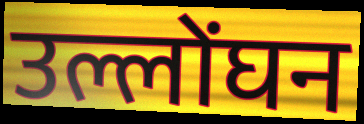
उल्लोंघन